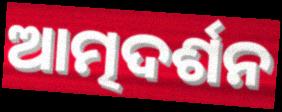
ଆତ୍ମଦର୍ଶନ